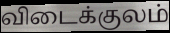
விடைக்குலம்